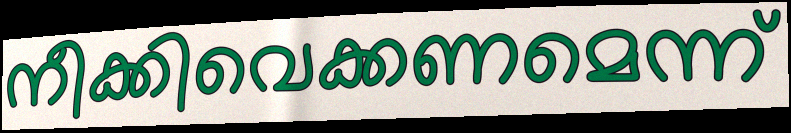
നീക്കിവെക്കണമെന്ന്